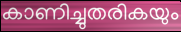
കാണിച്ചുതരികയും